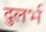
दुलर्भ